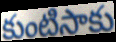
కుంటిసాకు